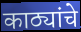
काठ्यांचे